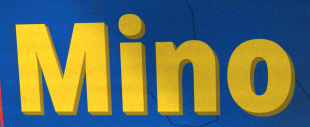
Mino